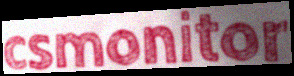
csmonitor